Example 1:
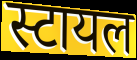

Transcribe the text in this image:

स्टायल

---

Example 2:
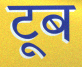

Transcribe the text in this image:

टूब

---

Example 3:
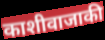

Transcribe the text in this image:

काशीवाजाकी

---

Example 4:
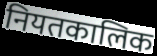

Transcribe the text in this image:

नियतकालिक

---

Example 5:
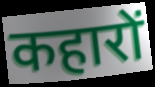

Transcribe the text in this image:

कहारों